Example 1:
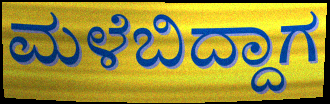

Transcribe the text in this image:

ಮಳೆಬಿದ್ದಾಗ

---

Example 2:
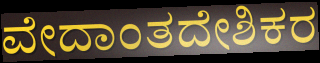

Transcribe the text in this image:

ವೇದಾಂತದೇಶಿಕರ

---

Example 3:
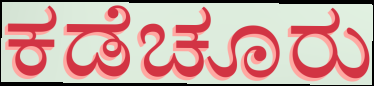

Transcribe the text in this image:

ಕಡೆಚೂರು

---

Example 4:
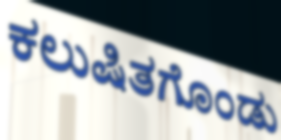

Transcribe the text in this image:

ಕಲುಷಿತಗೊಂಡು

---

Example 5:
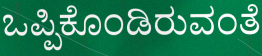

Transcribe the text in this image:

ಒಪ್ಪಿಕೊಂಡಿರುವಂತೆ